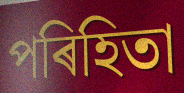
পৰিহিতা